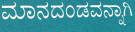
ಮಾನದಂಡವನ್ನಾಗಿ